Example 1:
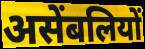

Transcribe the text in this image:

असेंबलियों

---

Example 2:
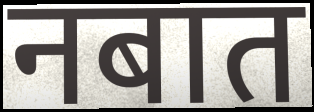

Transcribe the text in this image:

नबात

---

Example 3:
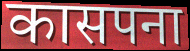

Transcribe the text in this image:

कासपना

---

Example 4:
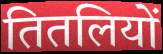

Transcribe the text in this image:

तितलियों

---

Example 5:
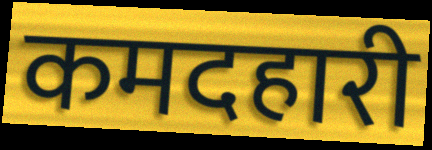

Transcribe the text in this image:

कमदहारी